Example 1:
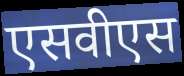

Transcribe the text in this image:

एसवीएस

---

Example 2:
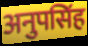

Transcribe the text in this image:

अनुपसिंह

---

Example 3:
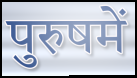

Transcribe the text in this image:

पुरुषमें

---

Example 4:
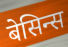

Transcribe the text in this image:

बेसिन्स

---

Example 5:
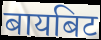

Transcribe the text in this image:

बायबिट